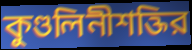
কুণ্ডলিনীশক্তির